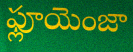
ఫ్లూయెంజా